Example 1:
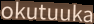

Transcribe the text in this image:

okutuuka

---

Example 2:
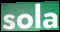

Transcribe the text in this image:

sola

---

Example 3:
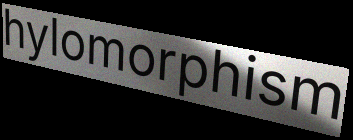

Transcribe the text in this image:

hylomorphism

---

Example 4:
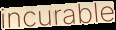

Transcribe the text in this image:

incurable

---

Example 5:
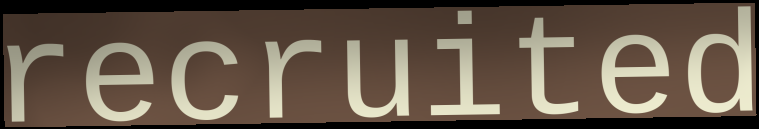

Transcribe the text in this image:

recruited